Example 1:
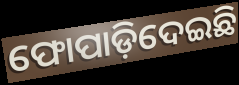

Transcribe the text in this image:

ଫୋପାଡ଼ିଦେଇଛି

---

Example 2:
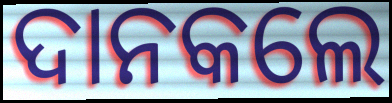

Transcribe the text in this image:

ଦାନକଲେ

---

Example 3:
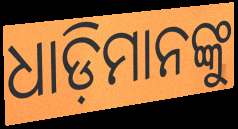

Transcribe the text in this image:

ଧାଡ଼ିମାନଙ୍କୁ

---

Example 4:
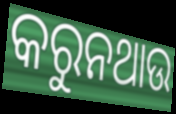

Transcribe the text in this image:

କରୁନଥାଉ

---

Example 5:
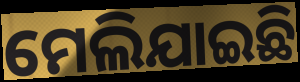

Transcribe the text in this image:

ମେଲିଯାଇଛି